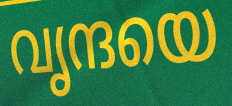
വൃന്ദയെ